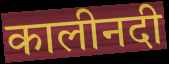
कालीनदी